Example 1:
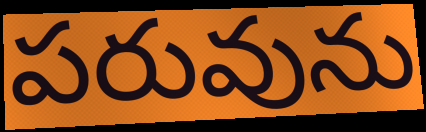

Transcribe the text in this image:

పరువును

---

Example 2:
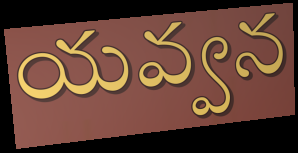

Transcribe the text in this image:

యవ్వన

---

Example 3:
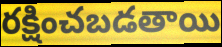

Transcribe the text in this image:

రక్షించబడతాయి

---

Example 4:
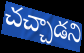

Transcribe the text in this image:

చచ్చాడని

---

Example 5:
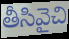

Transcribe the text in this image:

తీసివైచి